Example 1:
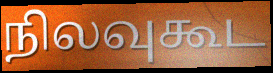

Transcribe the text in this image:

நிலவுகூட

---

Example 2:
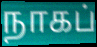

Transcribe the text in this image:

நாகப்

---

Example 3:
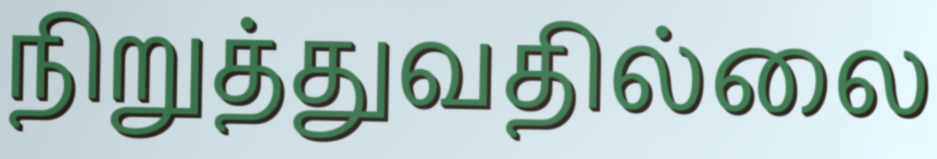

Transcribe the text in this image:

நிறுத்துவதில்லை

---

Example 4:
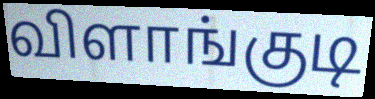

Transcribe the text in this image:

விளாங்குடி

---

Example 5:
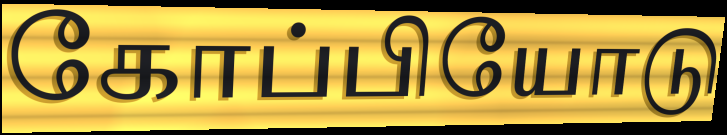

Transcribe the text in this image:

கோப்பியோடு